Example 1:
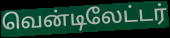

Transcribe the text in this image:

வென்டிலேட்டர்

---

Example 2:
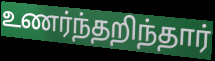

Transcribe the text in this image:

உணர்ந்தறிந்தார்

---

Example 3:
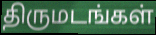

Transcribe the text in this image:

திருமடங்கள்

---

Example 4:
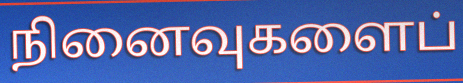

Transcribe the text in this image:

நினைவுகளைப்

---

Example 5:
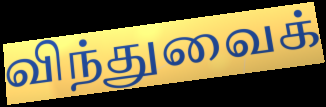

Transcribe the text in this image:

விந்துவைக்